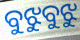
ବୁଝୁବୁଝୁ